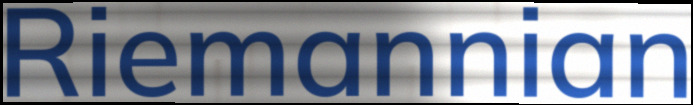
Riemannian